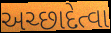
અચ્છાદેત્વા